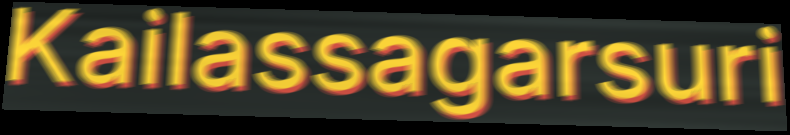
Kailassagarsuri